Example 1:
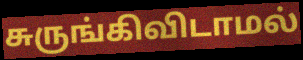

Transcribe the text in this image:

சுருங்கிவிடாமல்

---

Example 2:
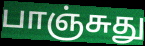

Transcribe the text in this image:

பாஞ்சுது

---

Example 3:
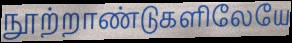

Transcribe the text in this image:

நூற்றாண்டுகளிலேயே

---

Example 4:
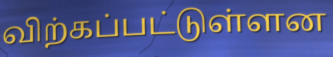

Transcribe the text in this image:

விற்கப்பட்டுள்ளன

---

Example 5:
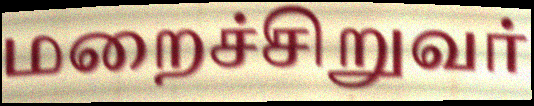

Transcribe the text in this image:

மறைச்சிறுவர்